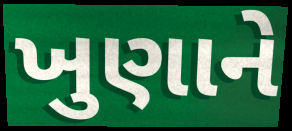
ખુણાને